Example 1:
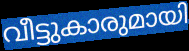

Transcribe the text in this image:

വീട്ടുകാരുമായി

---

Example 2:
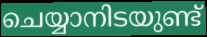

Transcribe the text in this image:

ചെയ്യാനിടയുണ്ട്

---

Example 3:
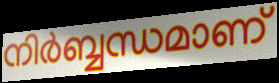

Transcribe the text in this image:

നിർബ്ബന്ധമാണ്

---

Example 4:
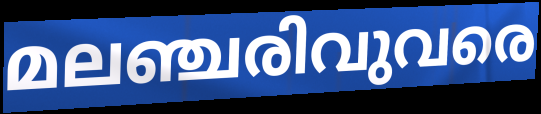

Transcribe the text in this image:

മലഞ്ചരിവുവരെ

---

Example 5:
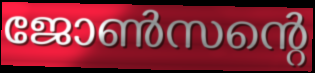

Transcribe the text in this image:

ജോൺസന്റെ